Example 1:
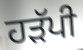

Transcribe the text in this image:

ਹੜੱਪੀ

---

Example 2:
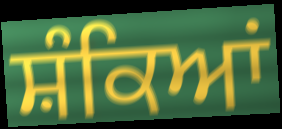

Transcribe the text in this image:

ਸ਼ੰਕਿਆਂ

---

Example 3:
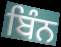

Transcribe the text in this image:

ਬਿੰਨ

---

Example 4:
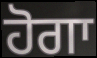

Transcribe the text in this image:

ਹੋਗਾ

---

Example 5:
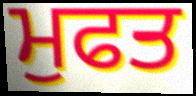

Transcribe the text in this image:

ਮੁਫਤ